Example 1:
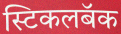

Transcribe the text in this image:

स्टिकलबॅक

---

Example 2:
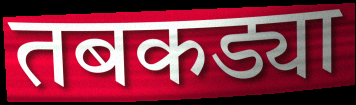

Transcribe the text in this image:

तबकड्या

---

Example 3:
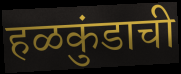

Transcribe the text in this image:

हळकुंडाची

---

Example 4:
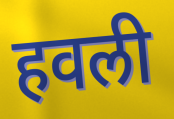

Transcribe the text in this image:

हवली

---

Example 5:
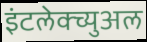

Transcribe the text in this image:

इंटलेक्च्युअल